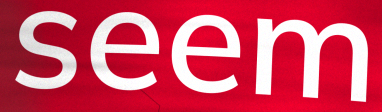
seem